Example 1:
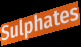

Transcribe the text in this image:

Sulphates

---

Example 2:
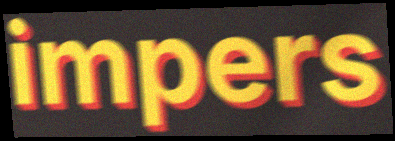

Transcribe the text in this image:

impers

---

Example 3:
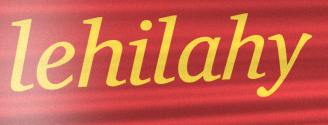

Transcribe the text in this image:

lehilahy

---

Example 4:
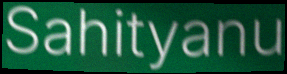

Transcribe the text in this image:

Sahityanu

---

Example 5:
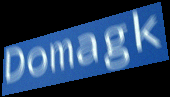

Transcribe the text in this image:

Domagk